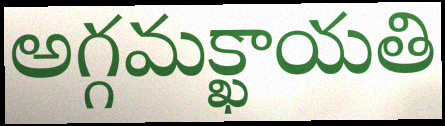
అగ్గమక్ఖాయతి